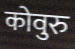
कोवुरु